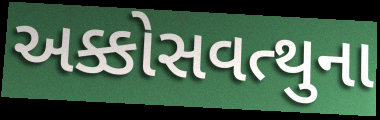
અક્કોસવત્થુના